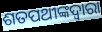
ଶତପଥୀଙ୍କଦ୍ୱାରା